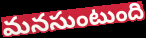
మనసుంటుంది